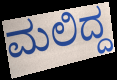
ಮಲಿದ್ದ